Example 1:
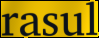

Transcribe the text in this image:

rasul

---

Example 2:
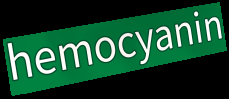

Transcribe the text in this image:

hemocyanin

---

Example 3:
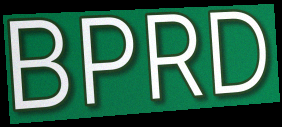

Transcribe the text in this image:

BPRD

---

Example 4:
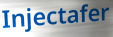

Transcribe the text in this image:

Injectafer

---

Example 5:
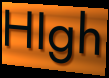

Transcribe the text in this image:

HIgh